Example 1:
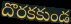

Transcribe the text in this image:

దొరకకుండ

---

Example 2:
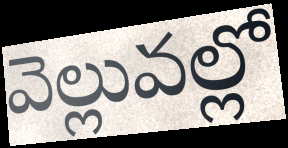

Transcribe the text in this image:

వెల్లువల్లో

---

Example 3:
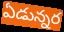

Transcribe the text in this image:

ఏడున్నర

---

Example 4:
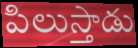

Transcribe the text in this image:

పిలుస్తాడు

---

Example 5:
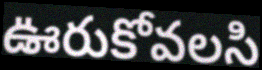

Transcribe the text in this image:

ఊరుకోవలసి